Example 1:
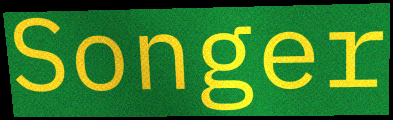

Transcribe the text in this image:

Songer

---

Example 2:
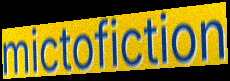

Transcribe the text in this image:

mictofiction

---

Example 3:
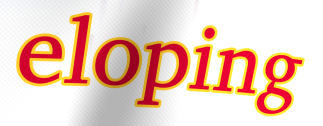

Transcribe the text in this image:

eloping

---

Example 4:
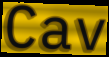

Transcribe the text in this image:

Cav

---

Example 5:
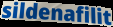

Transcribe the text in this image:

sildenafilit